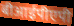
बीआईपीएपी